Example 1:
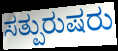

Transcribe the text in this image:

ಸತ್ಪುರುಷರು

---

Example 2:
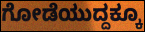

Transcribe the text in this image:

ಗೋಡೆಯುದ್ದಕ್ಕೂ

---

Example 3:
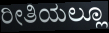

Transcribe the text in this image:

ರೀತಿಯಲ್ಲೂ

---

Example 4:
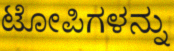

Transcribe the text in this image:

ಟೋಪಿಗಳನ್ನು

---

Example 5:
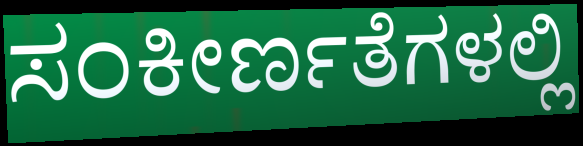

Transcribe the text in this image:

ಸಂಕೀರ್ಣತೆಗಳಲ್ಲಿ